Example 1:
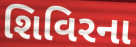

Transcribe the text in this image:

શિવિરના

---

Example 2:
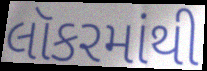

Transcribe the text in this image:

લૉકરમાંથી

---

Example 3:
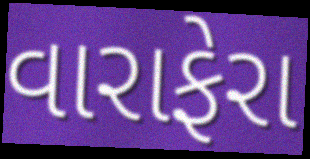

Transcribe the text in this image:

વારાફેરા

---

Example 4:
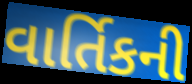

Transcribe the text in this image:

વાર્તિકની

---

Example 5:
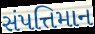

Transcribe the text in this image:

સંપત્તિમાન